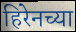
हिरेनच्या